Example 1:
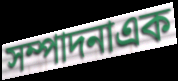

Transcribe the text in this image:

সম্পাদনাএক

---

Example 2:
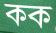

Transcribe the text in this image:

কক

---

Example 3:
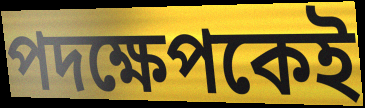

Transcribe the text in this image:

পদক্ষেপকেই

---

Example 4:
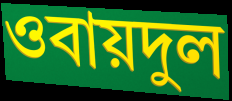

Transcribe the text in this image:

ওবায়দুল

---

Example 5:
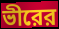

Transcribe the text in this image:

ভীরের